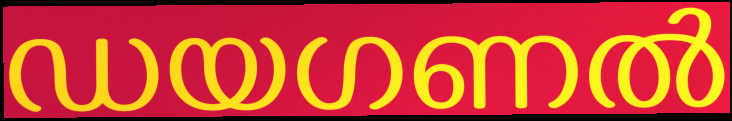
ഡയഗണൽ